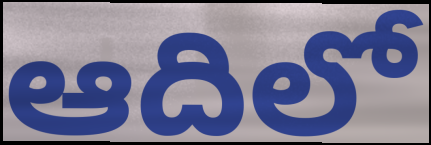
ఆదిలో